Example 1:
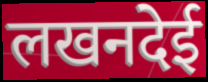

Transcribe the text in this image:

लखनदेई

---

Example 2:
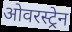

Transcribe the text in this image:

ओवरस्ट्रेन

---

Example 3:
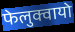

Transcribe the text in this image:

फेलुक्वायो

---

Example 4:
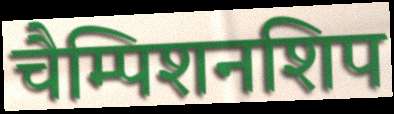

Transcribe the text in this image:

चैम्पिशनशिप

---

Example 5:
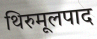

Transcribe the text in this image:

थिरुमूलपाद